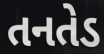
તનતેડ